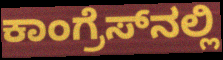
ಕಾಂಗ್ರೆಸ್‌ನಲ್ಲಿ